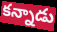
కన్నాడు